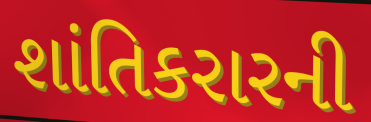
શાંતિકરારની